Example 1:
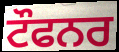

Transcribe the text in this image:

ਟੌਫਨਰ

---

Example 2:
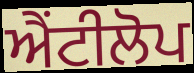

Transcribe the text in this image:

ਐਂਟੀਲੋਪ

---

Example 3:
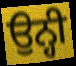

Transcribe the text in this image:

ਉਨ੍ਹੀ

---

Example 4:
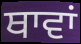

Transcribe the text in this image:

ਥਾਵਾਂ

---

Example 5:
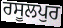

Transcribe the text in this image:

ਰਸੂਲਪੁਰ